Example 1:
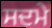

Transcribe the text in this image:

ਸਦਮੇ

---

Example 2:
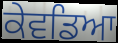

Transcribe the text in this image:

ਕੇਵਡਿਆ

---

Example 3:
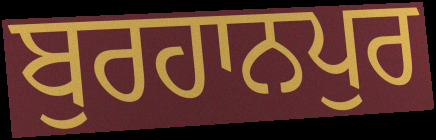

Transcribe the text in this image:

ਬੁਰਹਾਨਪੁਰ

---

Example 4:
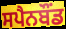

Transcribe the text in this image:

ਸਪੈਨਬੌਂਡ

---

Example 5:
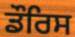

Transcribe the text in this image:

ਡੌਰਿਸ